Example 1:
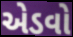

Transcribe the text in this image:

એડવો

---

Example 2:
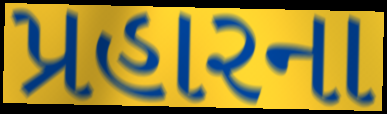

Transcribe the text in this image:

પ્રહારના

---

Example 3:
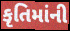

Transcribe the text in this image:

કૃતિમાંની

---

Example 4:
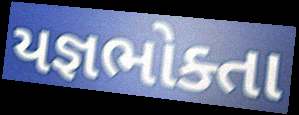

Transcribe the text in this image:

યજ્ઞભોક્તા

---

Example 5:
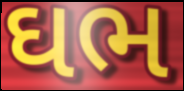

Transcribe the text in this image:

ઘભ